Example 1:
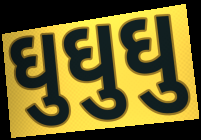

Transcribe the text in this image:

ઘુઘુઘુ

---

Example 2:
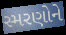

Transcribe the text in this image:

સ્મરણોને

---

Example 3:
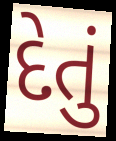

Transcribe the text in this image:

દેતું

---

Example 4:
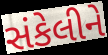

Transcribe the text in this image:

સંકેલીને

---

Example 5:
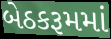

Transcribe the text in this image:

બેઠકરૂમમાં